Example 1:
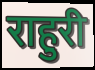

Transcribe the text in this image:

राहुरी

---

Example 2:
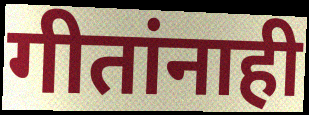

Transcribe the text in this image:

गीतांनाही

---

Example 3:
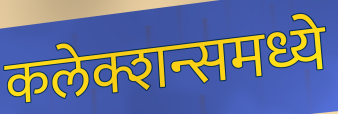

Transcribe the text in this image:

कलेक्शन्समध्ये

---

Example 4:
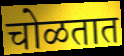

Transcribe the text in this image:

चोळतात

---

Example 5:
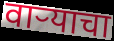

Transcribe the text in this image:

वाऱ्याचा